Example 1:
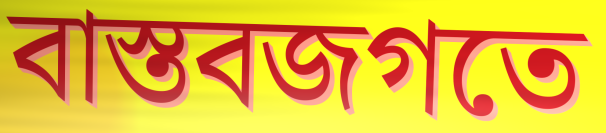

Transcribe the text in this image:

বাস্তবজগতে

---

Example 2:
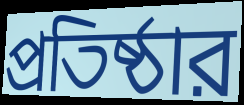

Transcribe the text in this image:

প্রতিষ্ঠার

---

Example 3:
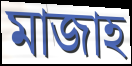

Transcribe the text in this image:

মাজাহ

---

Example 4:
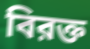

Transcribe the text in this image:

বিরক্ত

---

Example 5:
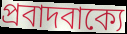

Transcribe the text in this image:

প্রবাদবাক্যে